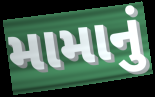
મામાનું